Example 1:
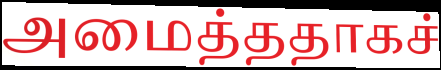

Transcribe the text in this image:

அமைத்ததாகச்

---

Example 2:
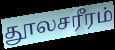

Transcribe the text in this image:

தூலசரீரம்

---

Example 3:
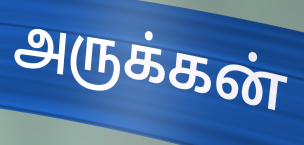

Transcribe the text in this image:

அருக்கன்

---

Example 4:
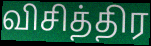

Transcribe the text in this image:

விசித்திர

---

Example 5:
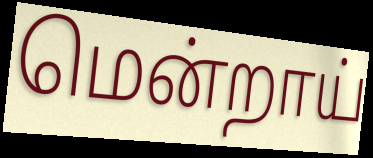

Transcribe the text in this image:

மென்றாய்